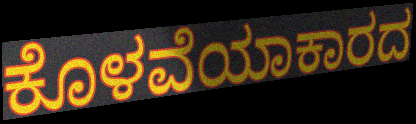
ಕೊಳವೆಯಾಕಾರದ